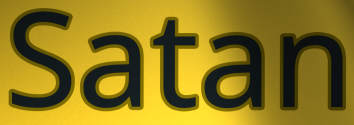
Satan